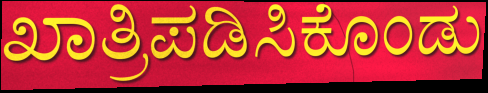
ಖಾತ್ರಿಪಡಿಸಿಕೊಂಡು